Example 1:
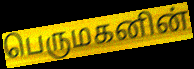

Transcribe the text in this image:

பெருமகனின்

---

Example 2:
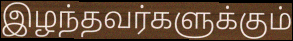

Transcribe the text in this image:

இழந்தவர்களுக்கும்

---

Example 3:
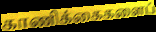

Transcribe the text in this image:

காணிக்கைகளைப்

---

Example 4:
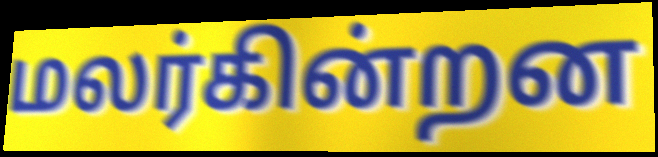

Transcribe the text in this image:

மலர்கின்றன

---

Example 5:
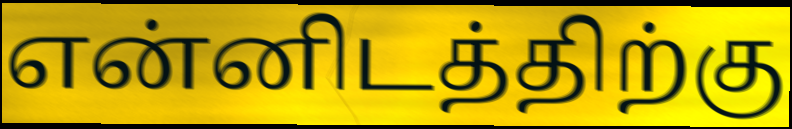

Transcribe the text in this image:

என்னிடத்திற்கு